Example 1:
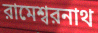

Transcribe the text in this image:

রামেশ্বরনাথ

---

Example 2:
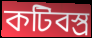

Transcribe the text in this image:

কটিবস্ত্র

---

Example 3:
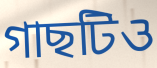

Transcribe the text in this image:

গাছটিও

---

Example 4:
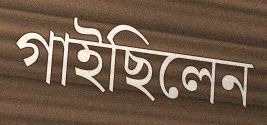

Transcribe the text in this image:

গাইছিলেন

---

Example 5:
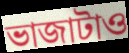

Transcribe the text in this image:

ভাজাটাও